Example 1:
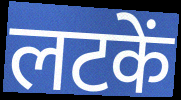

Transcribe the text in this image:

लटकें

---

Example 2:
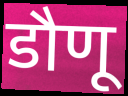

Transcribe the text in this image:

डौणू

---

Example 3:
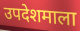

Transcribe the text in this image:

उपदेशमाला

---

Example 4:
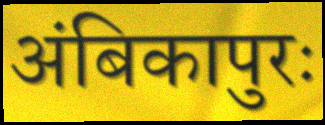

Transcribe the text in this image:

अंबिकापुरः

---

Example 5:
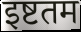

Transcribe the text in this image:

इष्टतम